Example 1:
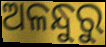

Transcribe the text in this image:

ଅଳନ୍ଧୁରୁ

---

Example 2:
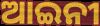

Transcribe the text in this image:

ଆଇନୀ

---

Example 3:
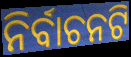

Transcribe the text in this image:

ନିର୍ବାଚନଟି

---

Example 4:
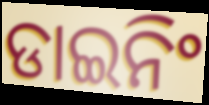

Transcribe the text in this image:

ଡାଇନିଂ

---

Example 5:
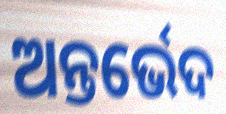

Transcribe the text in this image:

ଅନ୍ତର୍ଭେଦ